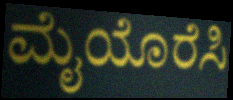
ಮೈಯೊರೆಸಿ